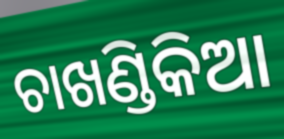
ଚାଖଣ୍ଡିକିଆ